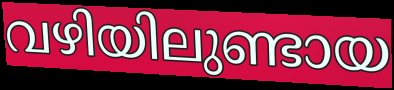
വഴിയിലുണ്ടായ